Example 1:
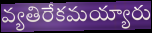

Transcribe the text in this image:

వ్యతిరేకమయ్యారు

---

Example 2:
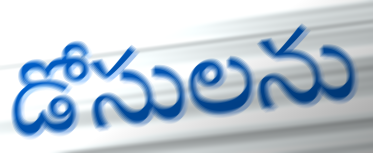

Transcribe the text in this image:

డోసులను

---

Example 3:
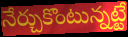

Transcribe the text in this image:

నేర్చుకొంటున్నట్టే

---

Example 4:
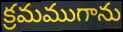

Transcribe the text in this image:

క్రమముగాను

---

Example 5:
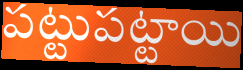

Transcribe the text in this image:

పట్టుపట్టాయి